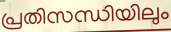
പ്രതിസന്ധിയിലും